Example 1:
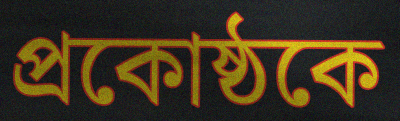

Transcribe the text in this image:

প্রকোষ্ঠকে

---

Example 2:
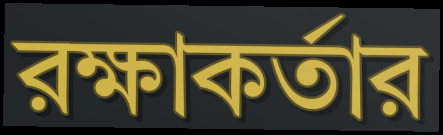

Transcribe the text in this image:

রক্ষাকর্তার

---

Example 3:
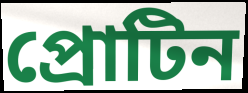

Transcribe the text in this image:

প্রোটিন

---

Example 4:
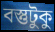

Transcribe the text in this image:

বস্তুটুকু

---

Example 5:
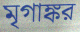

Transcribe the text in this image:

মৃগাঙ্কর